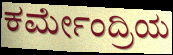
ಕರ್ಮೇಂದ್ರಿಯ